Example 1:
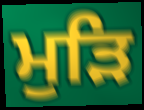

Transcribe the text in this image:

ਮੁੜਿ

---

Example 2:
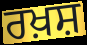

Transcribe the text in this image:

ਰਖ਼ਸ਼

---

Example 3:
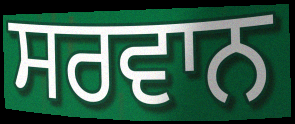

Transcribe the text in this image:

ਸਰਵਾਨ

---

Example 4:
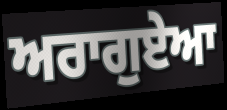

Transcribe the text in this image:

ਅਰਾਗੁਏਆ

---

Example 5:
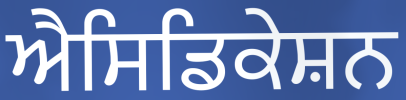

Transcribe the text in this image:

ਐਸਿਡਿਕੇਸ਼ਨ